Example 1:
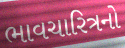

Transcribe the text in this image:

ભાવચારિત્રનો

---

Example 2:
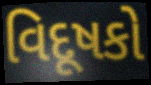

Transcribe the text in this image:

વિદૂષકો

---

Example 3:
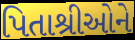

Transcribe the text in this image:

પિતાશ્રીઓને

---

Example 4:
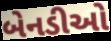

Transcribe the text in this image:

બેનડીઓ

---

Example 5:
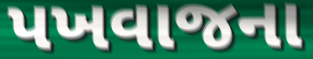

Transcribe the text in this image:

પખવાજના